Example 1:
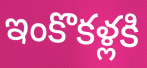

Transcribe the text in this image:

ఇంకొకళ్లకి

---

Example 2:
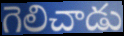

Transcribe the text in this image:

గెలిచాడు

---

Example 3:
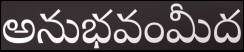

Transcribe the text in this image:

అనుభవంమీద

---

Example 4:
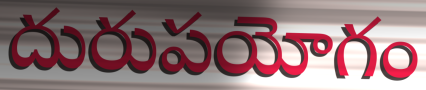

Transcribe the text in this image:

దురుపయోగం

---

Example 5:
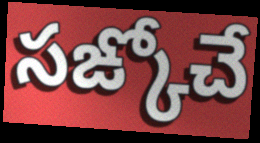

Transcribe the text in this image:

సఙ్కోచే